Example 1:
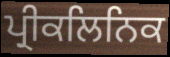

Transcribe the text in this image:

ਪ੍ਰੀਕਲਿਨਿਕ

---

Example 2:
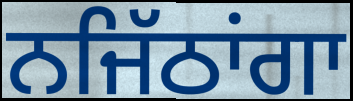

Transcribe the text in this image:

ਨਜਿੱਠਾਂਗਾ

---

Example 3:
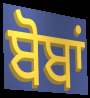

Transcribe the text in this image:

ਬੋਬਾਂ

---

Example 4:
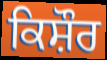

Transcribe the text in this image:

ਕਿਸ਼ੌਰ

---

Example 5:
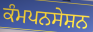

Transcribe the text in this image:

ਕੰਮਪਨਸੇਸ਼ਨ